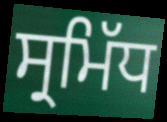
ਸ੍ਰਮਿੱਧ